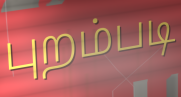
புறம்படி